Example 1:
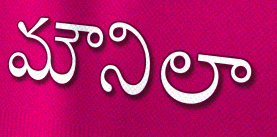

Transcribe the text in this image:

మౌనిలా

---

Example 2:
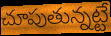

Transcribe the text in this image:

చూపుతున్నట్టే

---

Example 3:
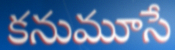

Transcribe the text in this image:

కనుమూసే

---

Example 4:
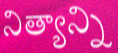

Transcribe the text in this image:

నిత్యాన్ని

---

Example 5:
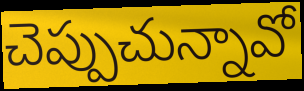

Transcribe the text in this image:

చెప్పుచున్నావో